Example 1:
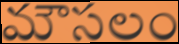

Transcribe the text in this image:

మౌసలం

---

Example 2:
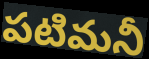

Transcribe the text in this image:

పటిమనీ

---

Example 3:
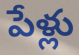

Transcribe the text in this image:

పేళ్లు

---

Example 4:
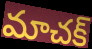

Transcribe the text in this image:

మాచక్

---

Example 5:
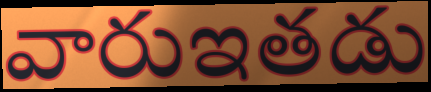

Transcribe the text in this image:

వారుఇతడు